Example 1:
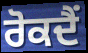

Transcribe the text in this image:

ਰੋਕਦੈਂ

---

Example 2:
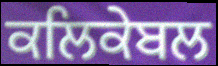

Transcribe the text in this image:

ਕਲਿਕੇਬਲ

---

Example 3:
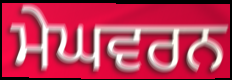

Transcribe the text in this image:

ਮੇਘਵਰਨ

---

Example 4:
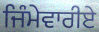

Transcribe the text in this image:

ਜਿੰਮੇਵਾਰੀਏ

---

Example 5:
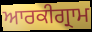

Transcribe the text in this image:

ਆਰਕੀਗ੍ਰਾਮ